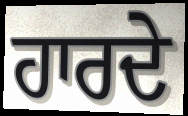
ਹਾਰਦੇ